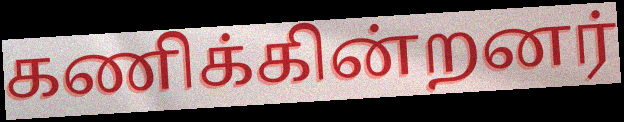
கணிக்கின்றனர்